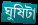
ঘুষিটা